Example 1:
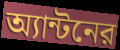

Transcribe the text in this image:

অ্যান্টনের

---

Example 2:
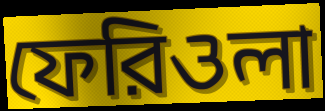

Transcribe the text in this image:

ফেরিওলা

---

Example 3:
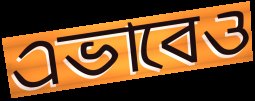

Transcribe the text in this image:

এভাবেও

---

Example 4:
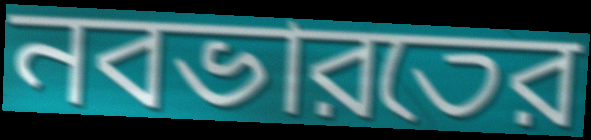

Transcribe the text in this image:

নবভারতের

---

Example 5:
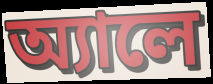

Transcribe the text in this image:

অ্যালে